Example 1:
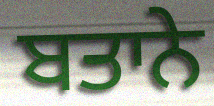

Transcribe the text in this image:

ਬਤਾਨੇ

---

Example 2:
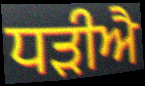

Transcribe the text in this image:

ਧੜੀਐ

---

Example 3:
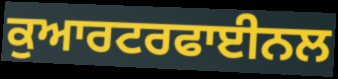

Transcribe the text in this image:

ਕੁਆਰਟਰਫਾਈਨਲ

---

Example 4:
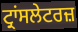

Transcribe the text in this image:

ਟ੍ਰਾਂਸਲੇਟਰਜ਼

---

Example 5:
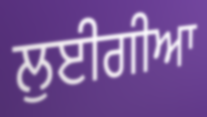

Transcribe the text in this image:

ਲੁਈਗੀਆ